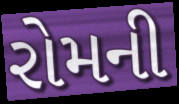
રોમની